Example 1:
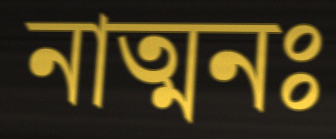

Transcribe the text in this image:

নাত্মনঃ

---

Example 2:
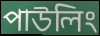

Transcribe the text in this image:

পাউলিং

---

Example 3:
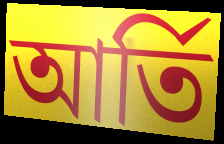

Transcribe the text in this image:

আর্তি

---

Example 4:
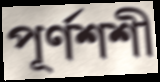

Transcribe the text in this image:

পূর্ণশশী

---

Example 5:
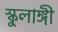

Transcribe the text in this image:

স্কুলাঙ্গী